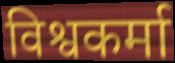
विश्वकर्मा